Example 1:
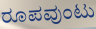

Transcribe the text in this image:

ರೂಪವುಂಟು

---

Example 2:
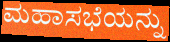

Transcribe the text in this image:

ಮಹಾಸಭೆಯನ್ನು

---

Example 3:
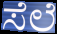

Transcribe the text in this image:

ಸೆಲೆ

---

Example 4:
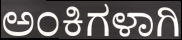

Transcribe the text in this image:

ಅಂಕಿಗಳಾಗಿ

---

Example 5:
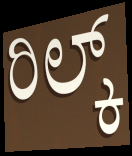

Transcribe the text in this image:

ರಿಲ್ಕ್